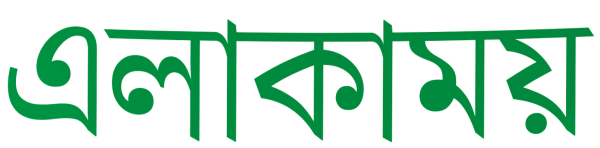
এলাকাময়